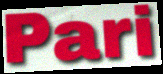
Pari